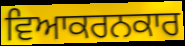
ਵਿਆਕਰਨਕਾਰ